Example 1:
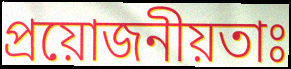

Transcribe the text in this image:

প্ৰয়োজনীয়তাঃ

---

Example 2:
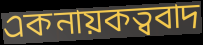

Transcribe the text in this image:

একনায়কত্ববাদ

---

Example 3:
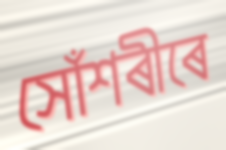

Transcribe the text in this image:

সোঁশৰীৰে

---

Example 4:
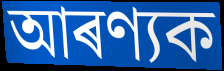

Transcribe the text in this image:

আৰণ্যক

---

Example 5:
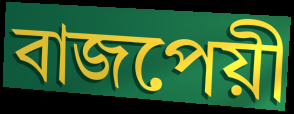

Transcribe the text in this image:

বাজপেয়ী